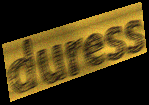
duress